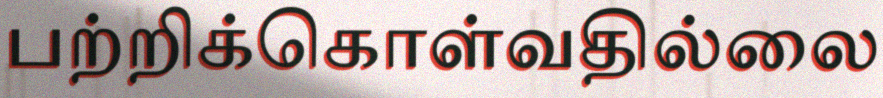
பற்றிக்கொள்வதில்லை